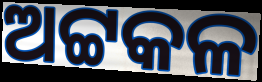
ଅଟ୍ଟକଳ